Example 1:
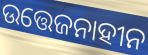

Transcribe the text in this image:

ଉତ୍ତେଜନାହୀନ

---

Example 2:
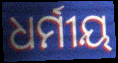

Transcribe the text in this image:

ଧର୍ମୀୟ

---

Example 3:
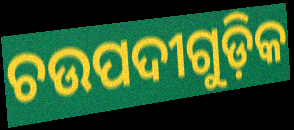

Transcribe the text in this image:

ଚଉପଦୀଗୁଡ଼ିକ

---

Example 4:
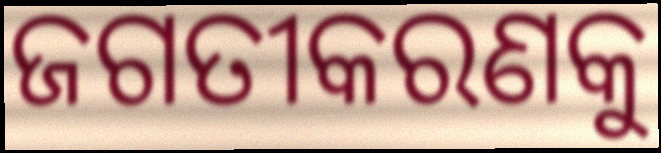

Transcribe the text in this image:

ଜଗତୀକରଣକୁ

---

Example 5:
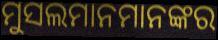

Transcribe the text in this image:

ମୁସଲମାନମାନଙ୍କର